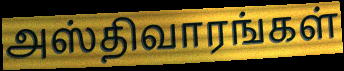
அஸ்திவாரங்கள்